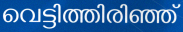
വെട്ടിത്തിരിഞ്ഞ്